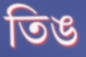
তিঙ